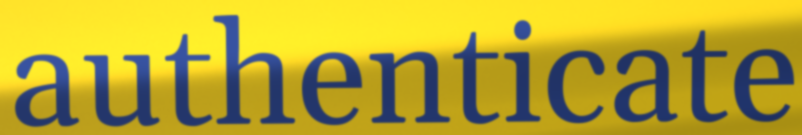
authenticate